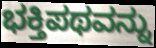
ಭಕ್ತಿಪಥವನ್ನು